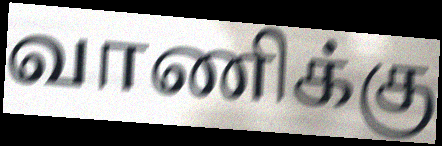
வாணிக்கு